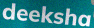
deeksha